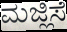
ಮಜ್ಲಿಸೆ